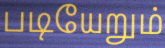
படியேறும்